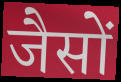
जैसों